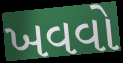
ખવવો